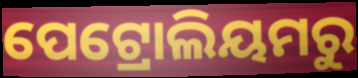
ପେଟ୍ରୋଲିୟମରୁ